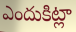
ఎందుకిట్లా